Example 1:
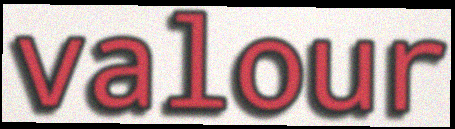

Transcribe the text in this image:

valour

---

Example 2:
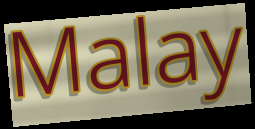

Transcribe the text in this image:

Malay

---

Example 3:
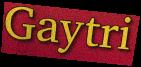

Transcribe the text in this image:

Gaytri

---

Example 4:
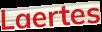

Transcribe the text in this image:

Laertes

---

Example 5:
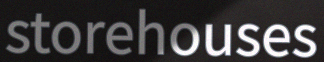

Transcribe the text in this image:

storehouses